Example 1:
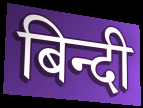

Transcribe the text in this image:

बिन्दी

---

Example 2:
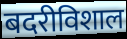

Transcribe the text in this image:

बदरीविशाल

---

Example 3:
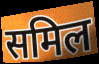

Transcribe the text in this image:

समिल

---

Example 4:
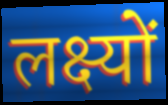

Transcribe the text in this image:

लक्ष्यों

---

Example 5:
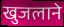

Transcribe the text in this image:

खुजलाने